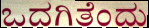
ಒದಗಿತೆಂದು